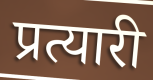
प्रत्यारी